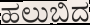
ಹಲುಬಿದ